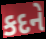
કદને